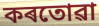
কৰতোৱা